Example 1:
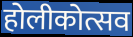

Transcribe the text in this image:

होलीकोत्सव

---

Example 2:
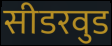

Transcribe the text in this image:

सीडरवुड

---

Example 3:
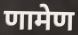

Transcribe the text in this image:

णामेण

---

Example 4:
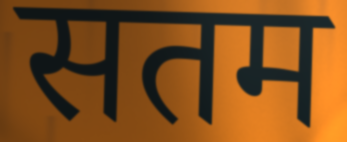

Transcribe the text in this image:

सतम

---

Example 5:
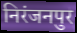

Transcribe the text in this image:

निरंजनपुर